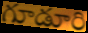
గూడూరి